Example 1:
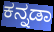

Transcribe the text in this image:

ಕನ್ನಡಾ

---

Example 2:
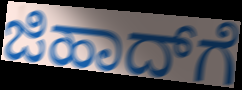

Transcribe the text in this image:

ಜಿಹಾದ್‌ಗೆ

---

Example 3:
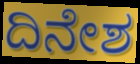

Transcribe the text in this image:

ದಿನೇಶ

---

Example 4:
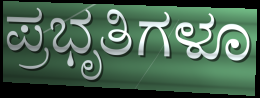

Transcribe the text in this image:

ಪ್ರಭೃತಿಗಳೂ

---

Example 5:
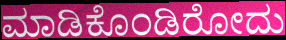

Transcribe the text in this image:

ಮಾಡಿಕೊಂಡಿರೋದು